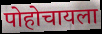
पोहोचायला